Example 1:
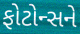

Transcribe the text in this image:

ફોટોન્સને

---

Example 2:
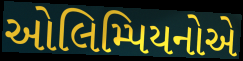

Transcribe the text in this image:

ઓલિમ્પિયનોએ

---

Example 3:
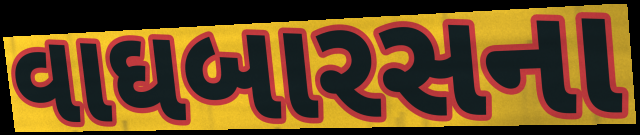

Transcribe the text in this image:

વાઘબારસના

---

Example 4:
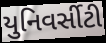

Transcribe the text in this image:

યુનિવર્સીટી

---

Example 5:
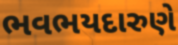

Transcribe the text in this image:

ભવભયદારુણે